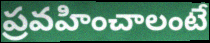
ప్రవహించాలంటే